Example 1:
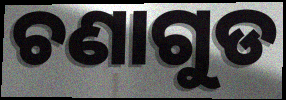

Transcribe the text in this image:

ଚଣାଗୁଡ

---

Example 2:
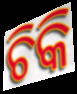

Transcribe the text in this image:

ଚିକି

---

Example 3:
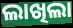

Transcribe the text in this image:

ଲାଖିଲା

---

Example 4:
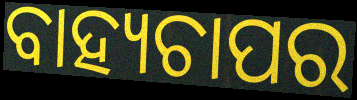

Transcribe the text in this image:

ବାହ୍ୟଚାପର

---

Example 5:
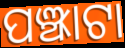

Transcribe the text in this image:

ପଞ୍ଝାଟା